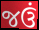
જઉં